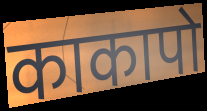
काकापो